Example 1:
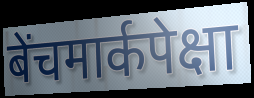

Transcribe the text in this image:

बेंचमार्कपेक्षा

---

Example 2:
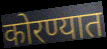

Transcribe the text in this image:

कोरण्यात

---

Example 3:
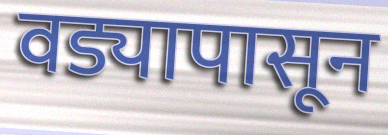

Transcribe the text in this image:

वड्यापासून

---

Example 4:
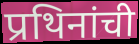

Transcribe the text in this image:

प्रथिनांची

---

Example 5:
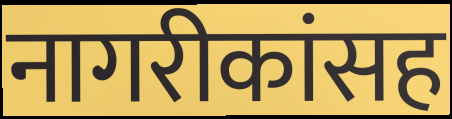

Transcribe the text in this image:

नागरीकांसह